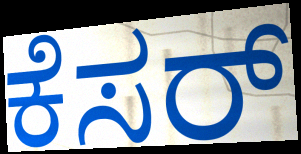
ಕೆಸರ್